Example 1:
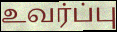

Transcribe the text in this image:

உவர்ப்பு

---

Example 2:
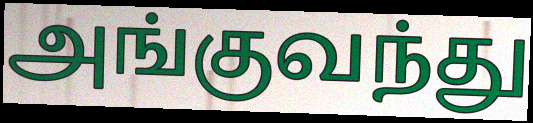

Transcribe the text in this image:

அங்குவந்து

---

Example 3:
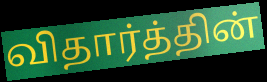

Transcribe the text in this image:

விதார்த்தின்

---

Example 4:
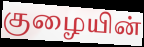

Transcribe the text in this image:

குழையின்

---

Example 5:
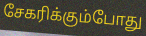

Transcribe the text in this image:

சேகரிக்கும்போது